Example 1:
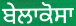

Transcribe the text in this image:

ਬੇਲਾਕੋਸਾ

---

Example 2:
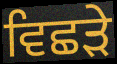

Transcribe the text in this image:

ਵਿਛੜੇ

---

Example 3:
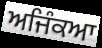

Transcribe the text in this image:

ਅਜਿੰਕਆ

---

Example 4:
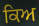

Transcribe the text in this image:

ਕਿਅ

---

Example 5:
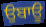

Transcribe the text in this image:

ਉਬਾਊ